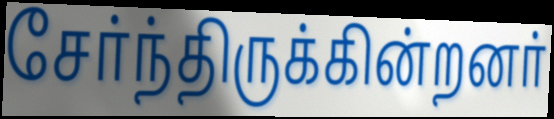
சேர்ந்திருக்கின்றனர்